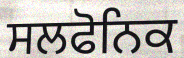
ਸਲਫੋਨਿਕ